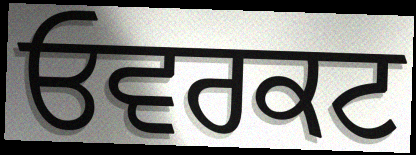
ਓਵਰਕਟ